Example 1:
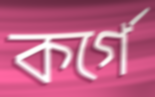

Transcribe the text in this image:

কর্গে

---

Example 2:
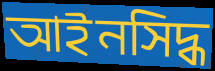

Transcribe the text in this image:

আইনসিদ্ধ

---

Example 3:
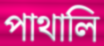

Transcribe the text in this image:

পাথালি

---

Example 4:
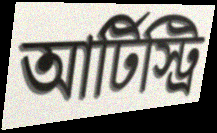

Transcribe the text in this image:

আর্টিস্ট্রি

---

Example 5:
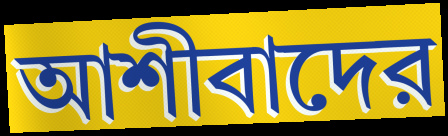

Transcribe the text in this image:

আশীবাদের